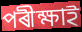
পৰীক্ষাই